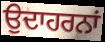
ਉਦਾਹਰਨਾਂ